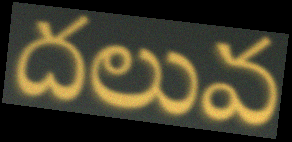
దలువ